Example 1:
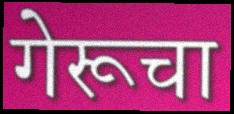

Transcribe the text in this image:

गेरूचा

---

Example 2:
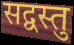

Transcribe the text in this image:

सद्वस्तु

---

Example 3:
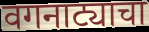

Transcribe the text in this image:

वगनाट्याचा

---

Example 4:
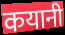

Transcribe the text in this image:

कयानी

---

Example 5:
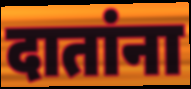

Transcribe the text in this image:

दातांना